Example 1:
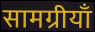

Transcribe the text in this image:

सामग्रीयाँ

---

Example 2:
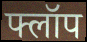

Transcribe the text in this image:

फ्लॉप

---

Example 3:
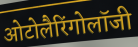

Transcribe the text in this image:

ओटोलैरिंगोलॉजी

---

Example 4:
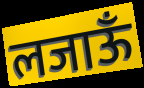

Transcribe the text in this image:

लजाऊँ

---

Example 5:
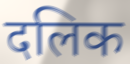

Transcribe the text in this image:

दलिक